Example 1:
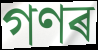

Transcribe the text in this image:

গণৰ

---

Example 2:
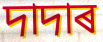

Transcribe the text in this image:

দাদাৰ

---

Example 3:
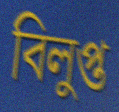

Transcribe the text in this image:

বিলুপ্ত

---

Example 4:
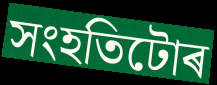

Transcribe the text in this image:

সংহতিটোৰ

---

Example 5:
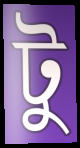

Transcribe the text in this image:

টু